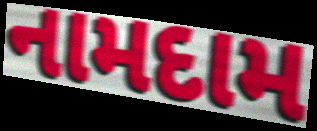
નામદામ